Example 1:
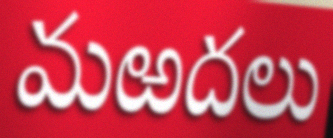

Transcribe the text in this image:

మఱదలు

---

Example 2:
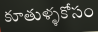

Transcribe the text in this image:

కూతుళ్ళకోసం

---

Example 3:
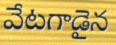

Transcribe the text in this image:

వేటగాడైన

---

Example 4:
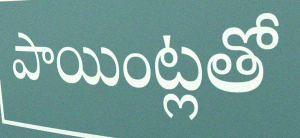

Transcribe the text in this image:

పాయింట్లతో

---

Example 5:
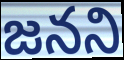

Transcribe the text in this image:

జనని